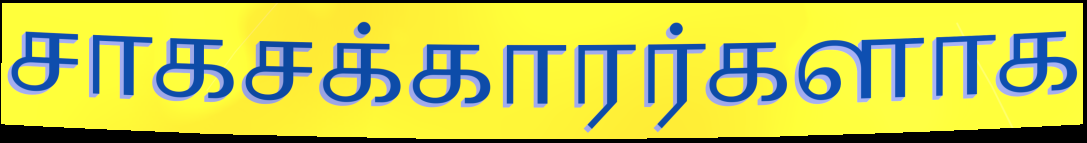
சாகசக்காரர்களாக